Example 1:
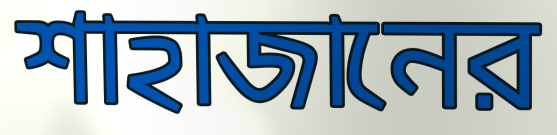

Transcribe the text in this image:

শাহাজানের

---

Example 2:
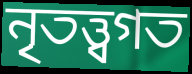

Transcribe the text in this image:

নৃতত্ত্বগত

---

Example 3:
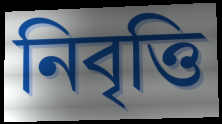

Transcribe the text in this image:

নিবৃত্তি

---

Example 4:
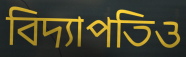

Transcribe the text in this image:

বিদ্যাপতিও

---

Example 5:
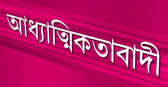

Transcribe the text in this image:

আধ্যাত্মিকতাবাদী